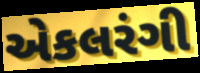
એકલરંગી